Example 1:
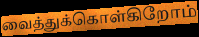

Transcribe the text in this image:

வைத்துக்கொள்கிறோம்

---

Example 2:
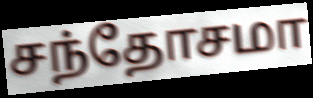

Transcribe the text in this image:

சந்தோசமா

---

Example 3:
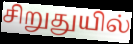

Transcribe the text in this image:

சிறுதுயில்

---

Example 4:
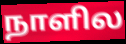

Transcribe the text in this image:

நாளில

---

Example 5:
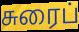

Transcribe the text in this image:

சுரைப்